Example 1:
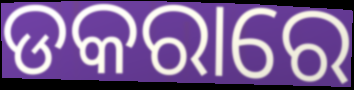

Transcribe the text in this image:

ଡକରାରେ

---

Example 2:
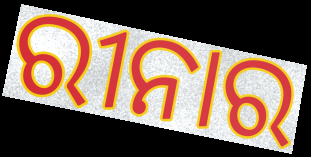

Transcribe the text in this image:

ରୀନାର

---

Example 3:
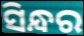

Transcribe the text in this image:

ସିନ୍ଧର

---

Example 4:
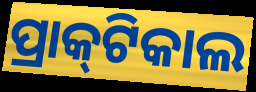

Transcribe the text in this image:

ପ୍ରାକ୍‌ଟିକାଲ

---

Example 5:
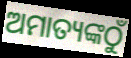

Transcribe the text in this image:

ଅମାତ୍ୟଙ୍କଠୁଁ